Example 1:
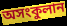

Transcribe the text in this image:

অসংকুলান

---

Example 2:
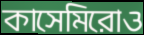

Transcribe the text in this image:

কাসেমিরোও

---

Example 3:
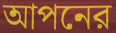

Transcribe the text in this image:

আপনের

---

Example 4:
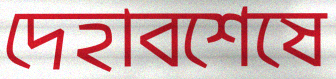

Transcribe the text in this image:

দেহাবশেষে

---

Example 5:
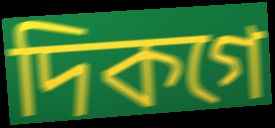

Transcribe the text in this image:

দিকগে